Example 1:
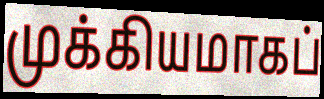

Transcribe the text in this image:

முக்கியமாகப்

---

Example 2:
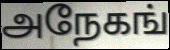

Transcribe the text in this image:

அநேகங்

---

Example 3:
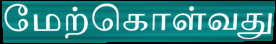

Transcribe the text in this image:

மேற்கொள்வது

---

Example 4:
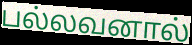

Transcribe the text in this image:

பல்லவனால்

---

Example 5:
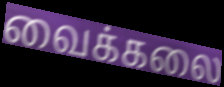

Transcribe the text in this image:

வைக்கலை